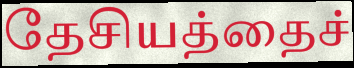
தேசியத்தைச்